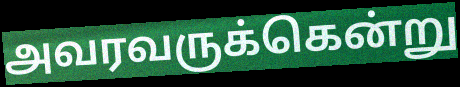
அவரவருக்கென்று